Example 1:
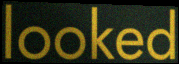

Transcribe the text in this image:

looked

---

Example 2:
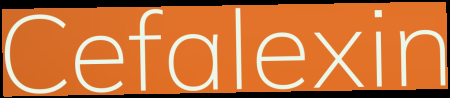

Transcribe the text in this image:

Cefalexin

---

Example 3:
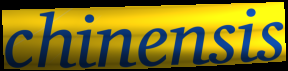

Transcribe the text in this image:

chinensis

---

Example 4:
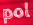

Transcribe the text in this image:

pol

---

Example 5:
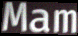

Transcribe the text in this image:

Mam